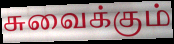
சுவைக்கும்